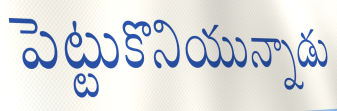
పెట్టుకొనియున్నాడు